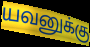
யவனுக்கு